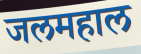
जलमहाल